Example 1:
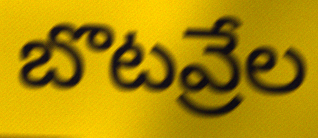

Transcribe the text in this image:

బొటవ్రేల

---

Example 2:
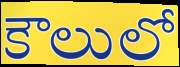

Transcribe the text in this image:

కౌలులో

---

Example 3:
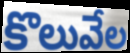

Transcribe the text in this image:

కొలువేల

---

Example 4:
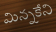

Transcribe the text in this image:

మిన్నకేని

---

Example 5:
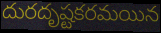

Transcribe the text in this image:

దురదృష్టకరమయిన